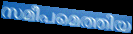
സമീപമെത്തിയ